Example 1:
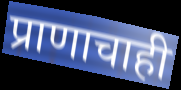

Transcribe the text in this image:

प्राणाचाही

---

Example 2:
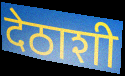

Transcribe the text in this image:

देठाशी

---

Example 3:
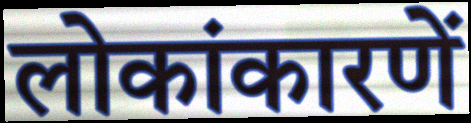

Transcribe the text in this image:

लोकांकारणें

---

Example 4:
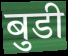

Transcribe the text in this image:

बुडी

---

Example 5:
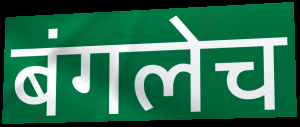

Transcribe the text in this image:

बंगलेच